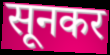
सूनकर